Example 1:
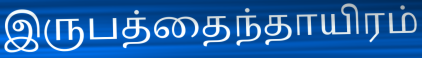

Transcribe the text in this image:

இருபத்தைந்தாயிரம்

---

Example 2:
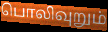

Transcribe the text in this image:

பொலிவுறும்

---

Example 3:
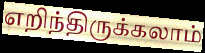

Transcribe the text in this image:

எறிந்திருக்கலாம்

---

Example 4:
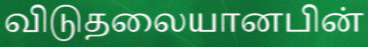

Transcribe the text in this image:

விடுதலையானபின்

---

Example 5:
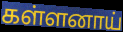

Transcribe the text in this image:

கள்ளனாய்